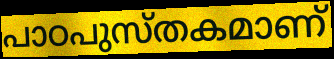
പാഠപുസ്തകമാണ്